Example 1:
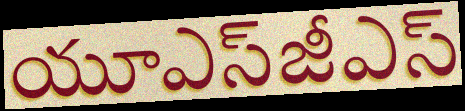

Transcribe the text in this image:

యూఎస్‌జీఎస్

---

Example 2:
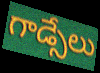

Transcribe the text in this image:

గాడ్సేలు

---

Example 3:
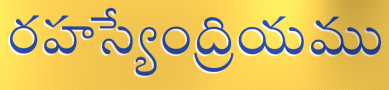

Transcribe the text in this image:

రహస్యేంద్రియము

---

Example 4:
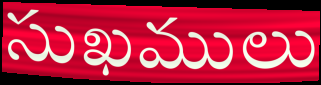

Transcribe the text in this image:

సుఖములు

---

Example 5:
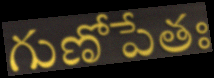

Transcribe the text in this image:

గుణోపేతః